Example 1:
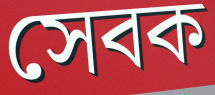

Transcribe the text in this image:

সেবক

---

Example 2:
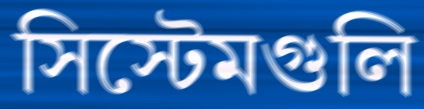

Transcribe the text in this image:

সিস্টেমগুলি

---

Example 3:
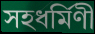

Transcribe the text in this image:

সহধর্মিণী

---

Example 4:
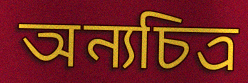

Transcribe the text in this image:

অন্যচিত্র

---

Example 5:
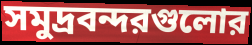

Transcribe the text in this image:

সমুদ্রবন্দরগুলোর